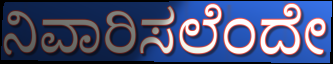
ನಿವಾರಿಸಲೆಂದೇ